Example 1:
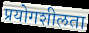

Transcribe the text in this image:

प्रयोगशीलता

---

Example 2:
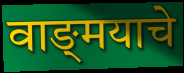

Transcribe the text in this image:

वाङ्‍मयाचे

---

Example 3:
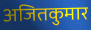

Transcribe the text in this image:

अजितकुमार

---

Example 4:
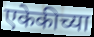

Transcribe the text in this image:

एकेकीच्या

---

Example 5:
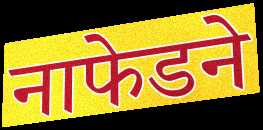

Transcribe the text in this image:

नाफेडने